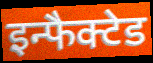
इन्फैक्टेड